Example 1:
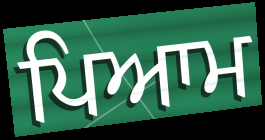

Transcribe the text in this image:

ਪਿਆਮ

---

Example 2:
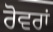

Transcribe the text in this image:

ਰੋਵਰਾਂ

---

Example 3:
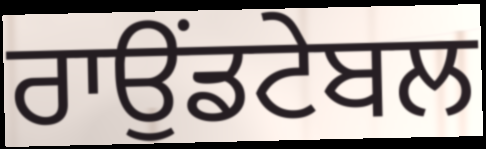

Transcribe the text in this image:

ਰਾਉਂਡਟੇਬਲ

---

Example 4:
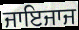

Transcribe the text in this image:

ਜਾਇਜਾਜ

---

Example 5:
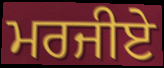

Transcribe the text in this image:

ਮਰਜੀਏ